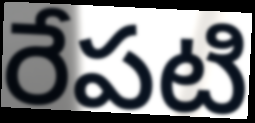
రేపటి